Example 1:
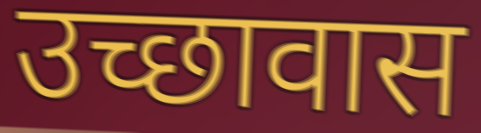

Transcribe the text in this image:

उच्छावास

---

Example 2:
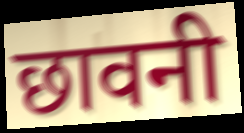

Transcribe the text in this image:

छावनी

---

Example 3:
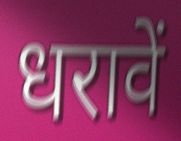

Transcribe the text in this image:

धरावें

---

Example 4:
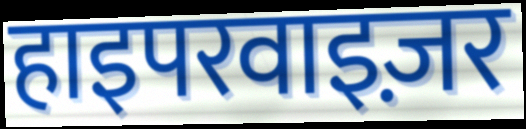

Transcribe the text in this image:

हाइपरवाइज़र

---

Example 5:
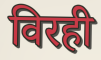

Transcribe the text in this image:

विरही